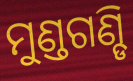
ମୁଣ୍ଡଗଣ୍ଡି